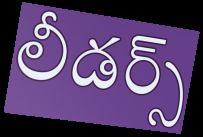
లీడర్స్